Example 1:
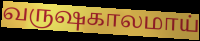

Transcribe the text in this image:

வருஷகாலமாய்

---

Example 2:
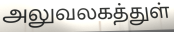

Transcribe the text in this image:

அலுவலகத்துள்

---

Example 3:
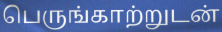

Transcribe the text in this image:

பெருங்காற்றுடன்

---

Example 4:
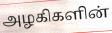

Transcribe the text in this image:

அழகிகளின்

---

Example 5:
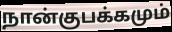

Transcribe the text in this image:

நான்குபக்கமும்